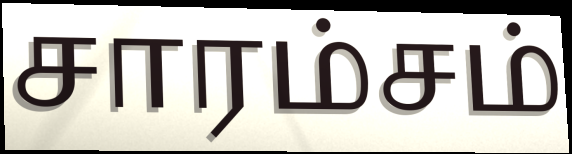
சாரம்சம்